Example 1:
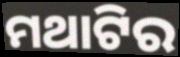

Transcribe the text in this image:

ମଥାଟିର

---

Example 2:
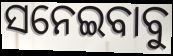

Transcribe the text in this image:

ସନେଇବାବୁ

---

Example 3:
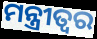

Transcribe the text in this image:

ମନ୍ତ୍ରୀତ୍ୱର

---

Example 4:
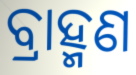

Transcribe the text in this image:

ବ୍ରାହ୍ମଣ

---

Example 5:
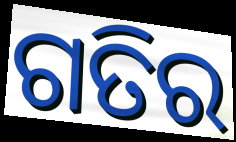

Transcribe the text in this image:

ଗତିର